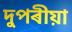
দুপৰীয়া